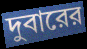
দুবারের